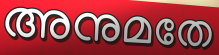
അനുമതേ